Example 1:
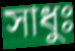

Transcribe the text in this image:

সাধুঃ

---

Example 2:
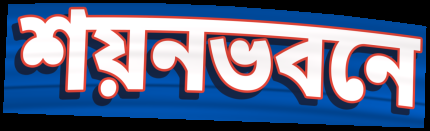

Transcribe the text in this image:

শয়নভবনে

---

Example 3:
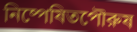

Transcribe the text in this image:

নিষ্পেষিতপৌরুষ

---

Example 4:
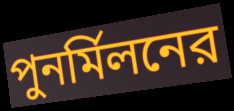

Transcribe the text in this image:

পুনর্মিলনের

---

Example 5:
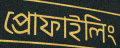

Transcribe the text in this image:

প্রোফাইলিং